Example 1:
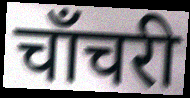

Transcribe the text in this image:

चाँचरी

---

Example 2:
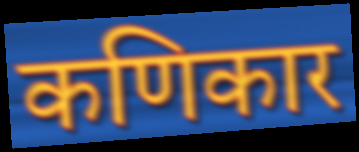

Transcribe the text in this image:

कणिकार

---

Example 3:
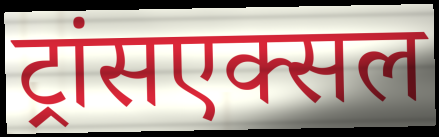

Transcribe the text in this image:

ट्रांसएक्सल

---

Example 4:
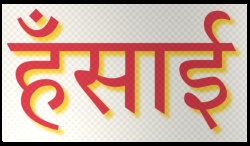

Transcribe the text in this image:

हँसाई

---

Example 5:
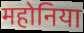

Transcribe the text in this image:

महोनिया